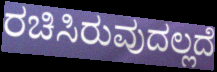
ರಚಿಸಿರುವುದಲ್ಲದೆ